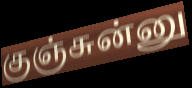
குஞ்சுன்னு